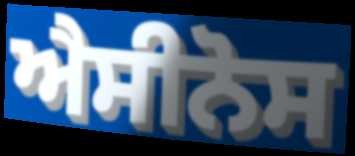
ਐਸੀਨੋਸ